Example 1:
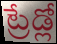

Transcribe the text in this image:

ట్రేడ్లో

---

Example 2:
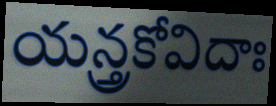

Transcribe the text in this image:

యన్త్రకోవిదాః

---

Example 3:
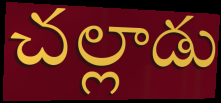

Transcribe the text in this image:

చల్లాడు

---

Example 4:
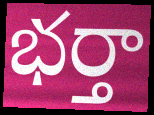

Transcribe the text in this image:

భర్తా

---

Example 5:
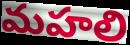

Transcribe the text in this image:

మహలి